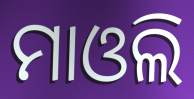
ମାଓଲି